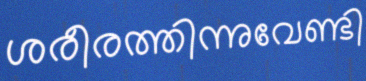
ശരീരത്തിന്നുവേണ്ടി